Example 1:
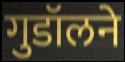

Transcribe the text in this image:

गुडॉलने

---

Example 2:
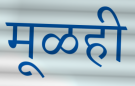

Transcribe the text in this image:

मूळही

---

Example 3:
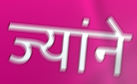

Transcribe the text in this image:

ज्यांने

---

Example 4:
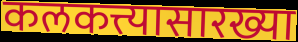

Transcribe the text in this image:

कलकत्त्यासारख्या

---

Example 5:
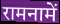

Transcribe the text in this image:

रामनामें